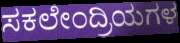
ಸಕಲೇಂದ್ರಿಯಗಳ